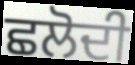
ਛਲੋਦੀ